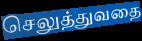
செலுத்துவதை